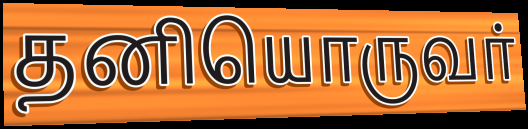
தனியொருவர்